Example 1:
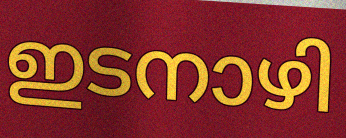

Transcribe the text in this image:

ഇടനാഴി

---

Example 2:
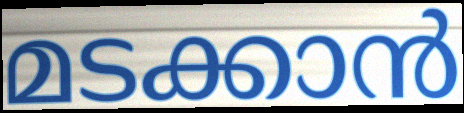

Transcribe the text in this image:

മടക്കാൻ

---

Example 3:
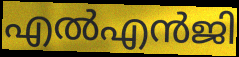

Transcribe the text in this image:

എൽഎൻജി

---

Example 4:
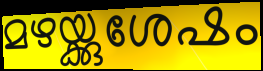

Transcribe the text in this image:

മഴയ്ക്കുശേഷം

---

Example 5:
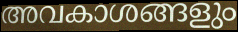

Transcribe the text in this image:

അവകാശങ്ങളും